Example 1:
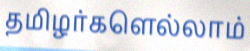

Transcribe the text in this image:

தமிழர்களெல்லாம்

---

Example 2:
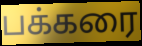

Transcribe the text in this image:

பக்கரை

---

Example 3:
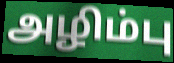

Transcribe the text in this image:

அழிம்பு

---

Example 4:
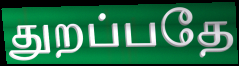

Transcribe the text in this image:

துறப்பதே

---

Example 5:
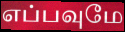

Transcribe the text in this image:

எப்பவுமே